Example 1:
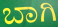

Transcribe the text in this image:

ಬಾಗಿ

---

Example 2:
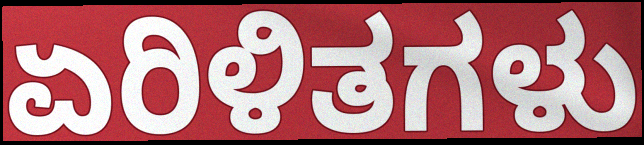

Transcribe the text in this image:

ಏರಿಳಿತಗಳು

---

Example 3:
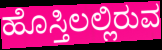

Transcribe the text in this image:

ಹೊಸ್ತಿಲಲ್ಲಿರುವ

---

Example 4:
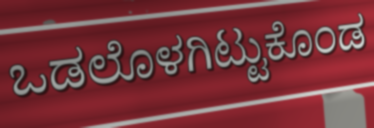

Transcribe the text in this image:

ಒಡಲೊಳಗಿಟ್ಟುಕೊಂಡ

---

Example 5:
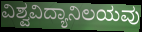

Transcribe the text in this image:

ವಿಶ್ವವಿದ್ಯಾನಿಲಯವು